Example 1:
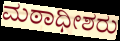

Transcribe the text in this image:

ಮಠಾಧೀಶರು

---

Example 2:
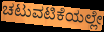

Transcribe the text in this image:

ಚಟುವಟಿಕೆಯಲ್ಲೇ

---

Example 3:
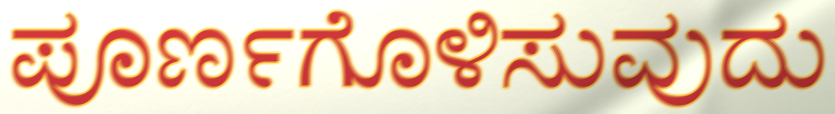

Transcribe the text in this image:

ಪೂರ್ಣಗೊಳಿಸುವುದು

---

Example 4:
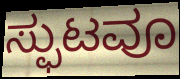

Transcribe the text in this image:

ಸ್ಫುಟವೂ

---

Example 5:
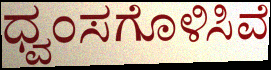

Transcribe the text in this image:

ಧ್ವಂಸಗೊಳಿಸಿವೆ